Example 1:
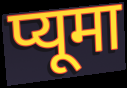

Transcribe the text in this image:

प्यूमा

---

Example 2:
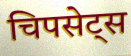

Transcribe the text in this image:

चिपसेट्स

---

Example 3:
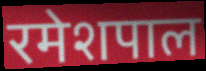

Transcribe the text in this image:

रमेशपाल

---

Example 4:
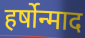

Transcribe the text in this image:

हर्षोन्माद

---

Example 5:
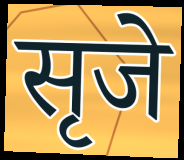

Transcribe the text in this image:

सृजे